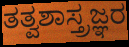
ತತ್ವಶಾಸ್ತ್ರಜ್ಞರ